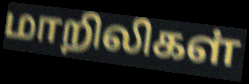
மாறிலிகள்